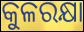
କୁଳରକ୍ଷା